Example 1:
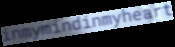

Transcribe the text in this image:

inmymindinmyheart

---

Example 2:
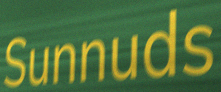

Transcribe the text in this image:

Sunnuds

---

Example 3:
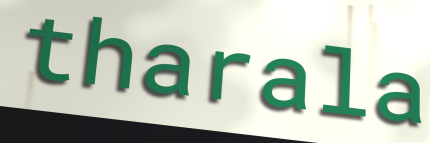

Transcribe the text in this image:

tharala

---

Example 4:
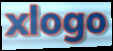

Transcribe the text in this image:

xlogo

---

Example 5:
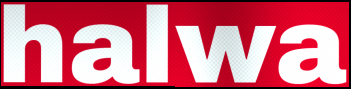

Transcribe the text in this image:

halwa